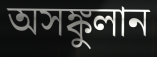
অসঙ্কুলান